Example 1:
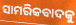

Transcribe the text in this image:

ସାମରିକବାଦକୁ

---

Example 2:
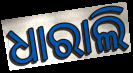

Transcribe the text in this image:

ଧାରାଲି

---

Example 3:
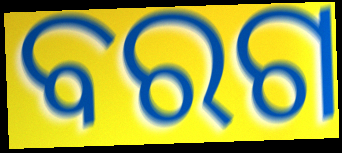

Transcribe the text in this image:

ବରଗ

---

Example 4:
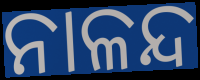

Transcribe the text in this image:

ନାଳନ୍ଦ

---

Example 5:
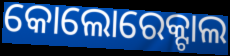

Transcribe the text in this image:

କୋଲୋରେକ୍ଟାଲ